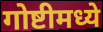
गोष्टीमध्ये